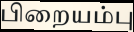
பிறையம்பு